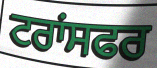
ਟਰਾਂਸਫਰ